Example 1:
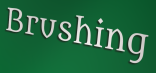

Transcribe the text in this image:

Brushing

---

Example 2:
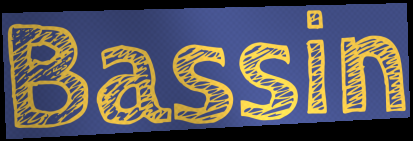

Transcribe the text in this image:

Bassin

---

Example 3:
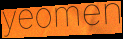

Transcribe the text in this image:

yeomen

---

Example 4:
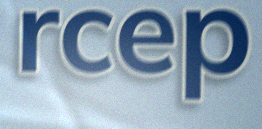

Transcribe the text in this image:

rcep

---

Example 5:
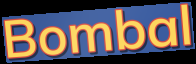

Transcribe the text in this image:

Bombal